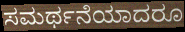
ಸಮರ್ಥನೆಯಾದರೂ